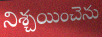
నిశ్చయించెను